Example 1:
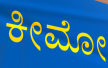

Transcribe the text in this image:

ಕೀಮೋ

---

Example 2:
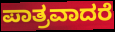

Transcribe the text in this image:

ಪಾತ್ರವಾದರೆ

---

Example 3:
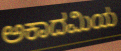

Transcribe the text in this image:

ಅಕಾದಮಿಯ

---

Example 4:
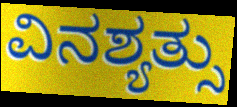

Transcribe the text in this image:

ವಿನಶ್ಯತ್ಸು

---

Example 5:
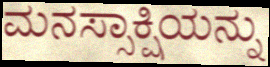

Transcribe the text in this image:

ಮನಸ್ಸಾಕ್ಷಿಯನ್ನು